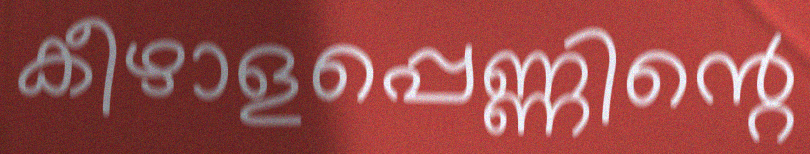
കീഴാളപ്പെണ്ണിന്റെ